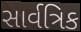
સાર્વત્રિક